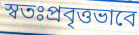
স্বতঃপ্রবৃত্তভাবে